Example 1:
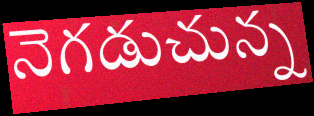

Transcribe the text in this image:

నెగడుచున్న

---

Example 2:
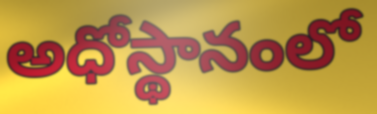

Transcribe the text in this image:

అధోస్థానంలో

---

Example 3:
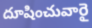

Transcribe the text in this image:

దూషించువారై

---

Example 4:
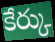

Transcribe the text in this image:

కేర్కు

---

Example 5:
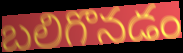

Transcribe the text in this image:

బలిగొనడం